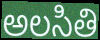
అలసితి